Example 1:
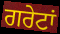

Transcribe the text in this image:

ਗਰੇਟਾਂ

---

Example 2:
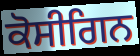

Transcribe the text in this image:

ਕੋਸੀਗਿਨ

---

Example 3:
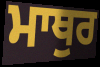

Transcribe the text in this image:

ਮਾਥੁਰ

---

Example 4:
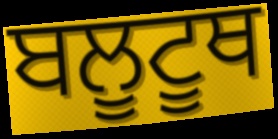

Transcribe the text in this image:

ਬਲੂਟੂਥ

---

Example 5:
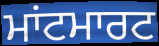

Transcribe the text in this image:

ਮਾਂਟਮਾਰਟ